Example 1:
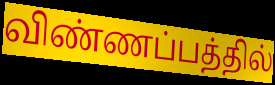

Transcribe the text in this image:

விண்ணப்பத்தில்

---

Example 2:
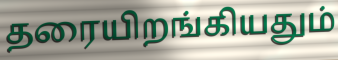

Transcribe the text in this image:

தரையிறங்கியதும்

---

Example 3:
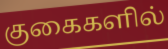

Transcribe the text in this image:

குகைகளில்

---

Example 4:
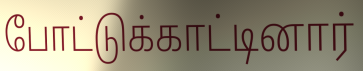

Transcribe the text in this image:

போட்டுக்காட்டினார்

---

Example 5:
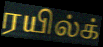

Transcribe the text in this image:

ரயில்க்